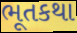
ભૂતકથા